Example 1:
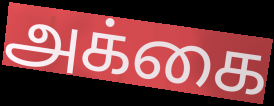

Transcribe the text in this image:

அக்கை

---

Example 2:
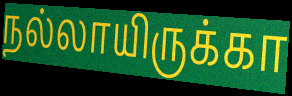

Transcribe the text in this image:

நல்லாயிருக்கா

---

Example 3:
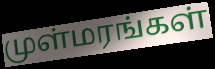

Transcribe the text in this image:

முள்மரங்கள்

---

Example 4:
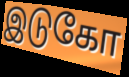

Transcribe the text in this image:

இடுகோ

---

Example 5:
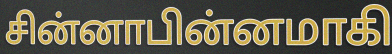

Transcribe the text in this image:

சின்னாபின்னமாகி